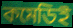
কমেডিই